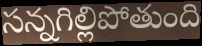
సన్నగిల్లిపోతుంది